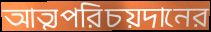
আত্মপরিচয়দানের